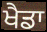
ਖੈਡਾ